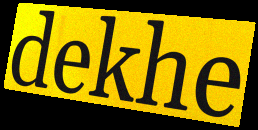
dekhe